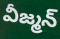
వీజ్మన్